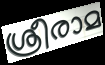
ശ്രീരാമ